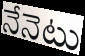
నేనెటు